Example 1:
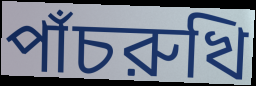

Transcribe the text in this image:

পাঁচরুখি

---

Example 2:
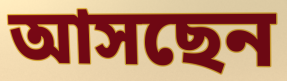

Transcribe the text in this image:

আসছেন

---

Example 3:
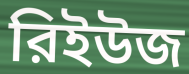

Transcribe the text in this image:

রিইউজ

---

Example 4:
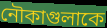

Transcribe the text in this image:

নৌকাগুলাকে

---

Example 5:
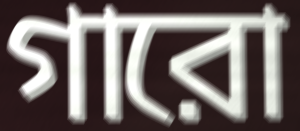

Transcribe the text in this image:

গারো